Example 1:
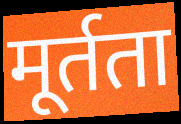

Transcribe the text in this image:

मूर्तता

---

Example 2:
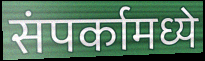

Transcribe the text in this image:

संपर्कामध्ये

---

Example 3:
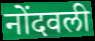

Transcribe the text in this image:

नोंदवली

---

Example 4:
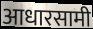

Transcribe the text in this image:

आधारसामी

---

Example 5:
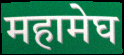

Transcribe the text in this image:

महामेघ